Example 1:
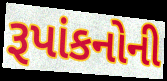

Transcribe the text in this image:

રૂપાંકનોની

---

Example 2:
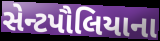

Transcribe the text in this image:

સેન્ટપૌલિયાના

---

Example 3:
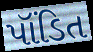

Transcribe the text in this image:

પૉંડિત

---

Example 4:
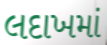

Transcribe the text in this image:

લદાખમાં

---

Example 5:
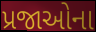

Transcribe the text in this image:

પ્રજાઓના